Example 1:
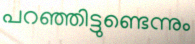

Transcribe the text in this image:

പറഞ്ഞിട്ടുണ്ടെന്നും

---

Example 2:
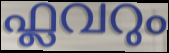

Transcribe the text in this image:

ഫ്ലവറും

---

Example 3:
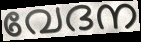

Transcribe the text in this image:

വേദന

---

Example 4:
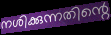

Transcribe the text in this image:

നശിക്കുന്നതിന്റെ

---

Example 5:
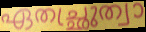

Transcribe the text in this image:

ഏതച്ഛ്രുത്വാ